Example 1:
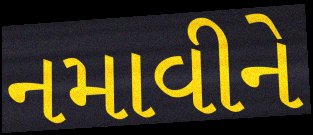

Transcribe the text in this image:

નમાવીને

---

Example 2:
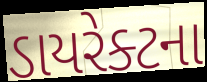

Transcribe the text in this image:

ડાયરેક્ટના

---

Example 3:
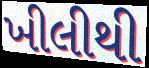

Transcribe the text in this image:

ખીલીથી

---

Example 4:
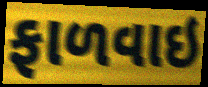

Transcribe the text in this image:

ફાળવાઇ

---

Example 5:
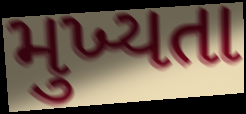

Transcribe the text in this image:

મુખ્યતા